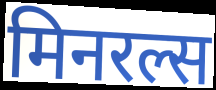
मिनरल्स